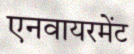
एनवायरमेंट